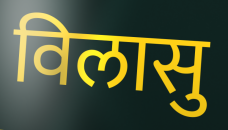
विलासु